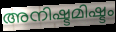
അനിഷ്ടമിഷ്ടം